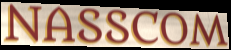
NASSCOM